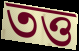
তত্ত